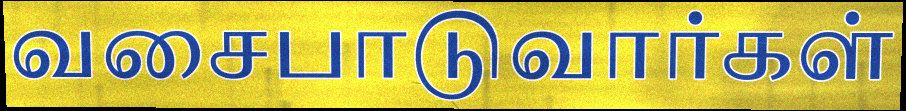
வசைபாடுவார்கள்